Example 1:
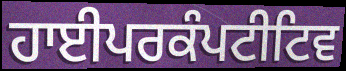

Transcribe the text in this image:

ਹਾਈਪਰਕੰਪਟੀਟਿਵ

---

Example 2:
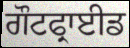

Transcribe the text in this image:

ਗੌਟਫ੍ਰਾਈਡ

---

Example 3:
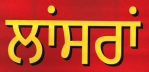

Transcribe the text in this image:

ਲਾਂਸਰਾਂ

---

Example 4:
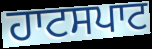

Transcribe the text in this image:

ਹਾਟਸਪਾਟ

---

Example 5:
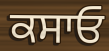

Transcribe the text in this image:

ਕਸਾਓ